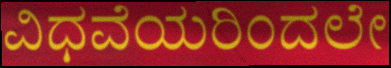
ವಿಧವೆಯರಿಂದಲೇ